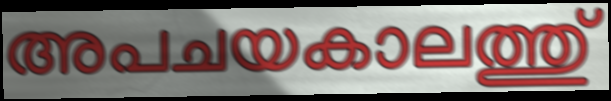
അപചയകാലത്തു്